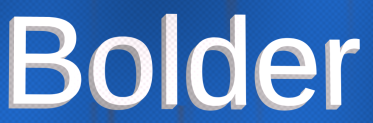
Bolder